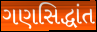
ગણસિદ્ધાંત